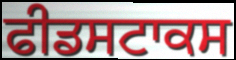
ਫੀਡਸਟਾਕਸ